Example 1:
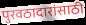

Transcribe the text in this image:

पुरवठादारांसाठी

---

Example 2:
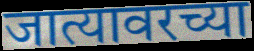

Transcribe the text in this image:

जात्यावरच्या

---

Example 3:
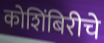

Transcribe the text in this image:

कोशिंबिरीचे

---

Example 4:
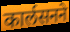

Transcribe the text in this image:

कार्लसनने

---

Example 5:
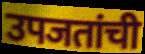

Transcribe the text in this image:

उपजतांची